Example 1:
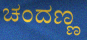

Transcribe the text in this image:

ಚಂದಣ್ಣ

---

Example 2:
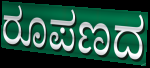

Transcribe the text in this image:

ರೂಪಣದ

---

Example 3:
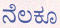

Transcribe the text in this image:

ನೆಲಕೂ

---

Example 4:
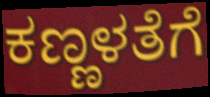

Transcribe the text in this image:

ಕಣ್ಣಳತೆಗೆ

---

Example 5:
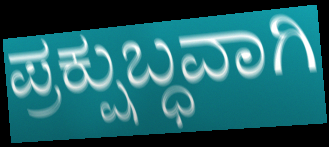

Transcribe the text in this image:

ಪ್ರಕ್ಷುಬ್ಧವಾಗಿ